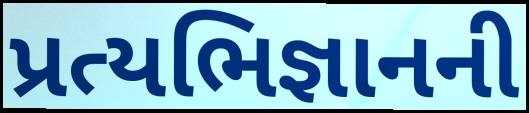
પ્રત્યભિજ્ઞાનની